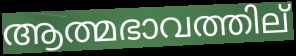
ആത്മഭാവത്തില്